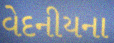
વેદનીયના